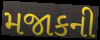
મજાકની